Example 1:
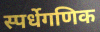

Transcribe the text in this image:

स्पर्धेगणिक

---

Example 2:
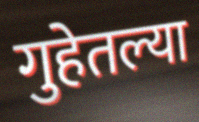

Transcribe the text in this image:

गुहेतल्या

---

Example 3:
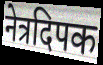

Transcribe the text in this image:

नेत्रदिपक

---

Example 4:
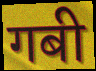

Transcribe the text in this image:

गबी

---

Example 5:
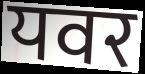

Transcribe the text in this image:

यवर